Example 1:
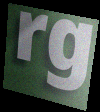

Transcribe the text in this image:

rg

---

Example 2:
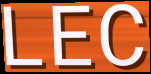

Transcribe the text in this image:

LEC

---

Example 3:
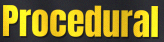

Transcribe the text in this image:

Procedural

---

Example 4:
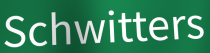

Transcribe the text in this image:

Schwitters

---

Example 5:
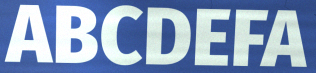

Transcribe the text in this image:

ABCDEFA